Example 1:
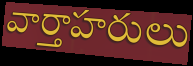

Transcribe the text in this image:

వార్తాహరులు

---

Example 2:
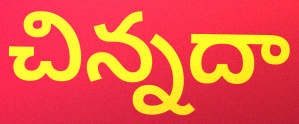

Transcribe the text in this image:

చిన్నదా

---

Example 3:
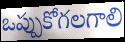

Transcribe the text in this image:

ఒప్పుకోగలగాలి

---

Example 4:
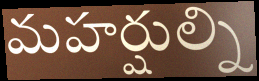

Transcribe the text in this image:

మహర్షుల్ని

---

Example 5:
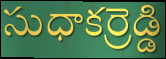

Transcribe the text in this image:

సుధాకర్రెడ్డి